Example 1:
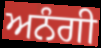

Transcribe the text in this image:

ਅਨੰਗੀ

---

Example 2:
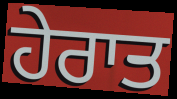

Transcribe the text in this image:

ਹੇਰਾਤ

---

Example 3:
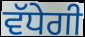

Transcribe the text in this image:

ਵੱਧੇਗੀ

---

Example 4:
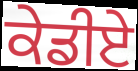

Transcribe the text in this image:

ਕੇਡੀਏ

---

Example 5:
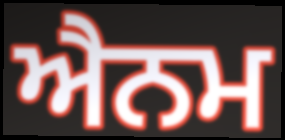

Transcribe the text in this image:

ਐਨਮ